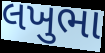
લખુભા